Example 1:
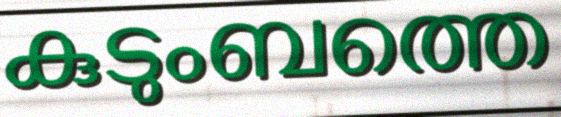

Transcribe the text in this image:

കുടുംബത്തെ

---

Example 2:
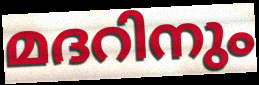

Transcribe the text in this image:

മദറിനും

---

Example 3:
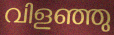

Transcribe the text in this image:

വിളഞ്ഞു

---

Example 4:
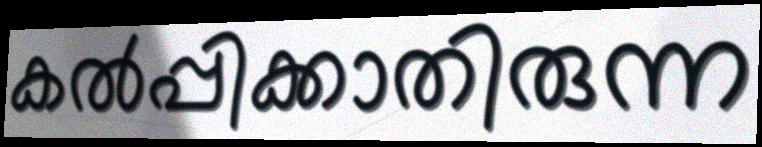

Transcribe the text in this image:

കൽപ്പിക്കാതിരുന്ന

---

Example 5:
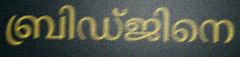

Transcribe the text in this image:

ബ്രിഡ്ജിനെ